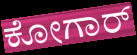
ಕೋಗಾರ್